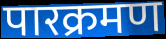
पारक्रमण